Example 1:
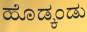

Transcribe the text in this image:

ಹೊಡ್ಕಂಡು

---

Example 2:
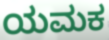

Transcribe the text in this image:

ಯಮಕ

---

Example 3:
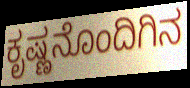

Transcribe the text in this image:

ಕೃಷ್ಣನೊಂದಿಗಿನ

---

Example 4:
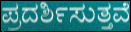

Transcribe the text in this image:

ಪ್ರದರ್ಶಿಸುತ್ತವೆ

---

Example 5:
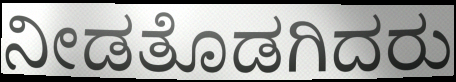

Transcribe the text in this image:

ನೀಡತೊಡಗಿದರು